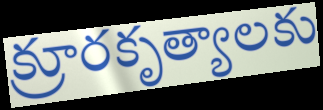
క్రూరకృత్యాలకు